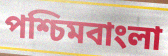
পশ্চিমবাংলা